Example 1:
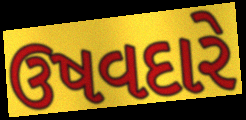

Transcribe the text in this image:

ઉષવદારે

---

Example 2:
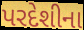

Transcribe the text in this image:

પરદેશીના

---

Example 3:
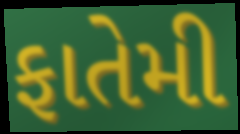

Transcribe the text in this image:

ફાતેમી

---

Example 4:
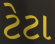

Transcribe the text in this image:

ટેટા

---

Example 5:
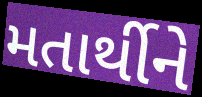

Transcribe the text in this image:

મતાર્થીને